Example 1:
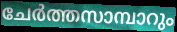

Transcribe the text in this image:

ചേർത്തസാമ്പാറും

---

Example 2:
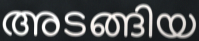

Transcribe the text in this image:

അടങ്ങിയ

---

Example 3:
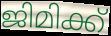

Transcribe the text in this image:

ജിമിക്ക്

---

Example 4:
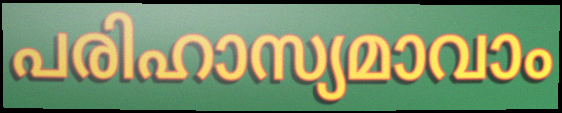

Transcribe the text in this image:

പരിഹാസ്യമാവാം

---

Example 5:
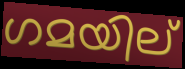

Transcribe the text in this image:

ഗമയില്